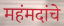
महंमदांचे